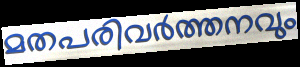
മതപരിവർത്തനവും